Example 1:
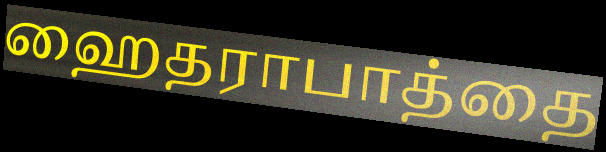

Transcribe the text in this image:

ஹைதராபாத்தை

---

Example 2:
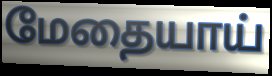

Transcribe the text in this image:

மேதையாய்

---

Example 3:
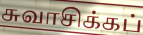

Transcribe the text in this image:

சுவாசிக்கப்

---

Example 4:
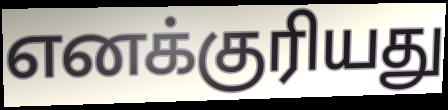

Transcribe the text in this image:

எனக்குரியது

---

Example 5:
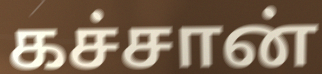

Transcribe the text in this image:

கச்சான்